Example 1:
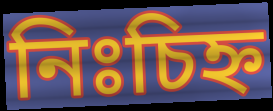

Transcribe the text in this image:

নিঃচিহ্ন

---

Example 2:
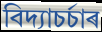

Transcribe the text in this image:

বিদ্যাচৰ্চাৰ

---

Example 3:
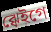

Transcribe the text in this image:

ঝ্ৱেইগে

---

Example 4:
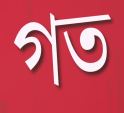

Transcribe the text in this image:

গত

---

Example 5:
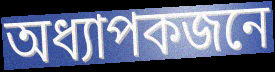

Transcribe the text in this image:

অধ্যাপকজনে